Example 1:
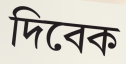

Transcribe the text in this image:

দিবেক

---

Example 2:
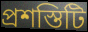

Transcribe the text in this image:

প্রশস্তিটি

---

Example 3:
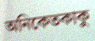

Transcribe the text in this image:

অনিকেতকাকু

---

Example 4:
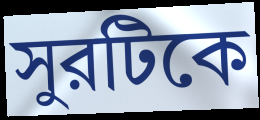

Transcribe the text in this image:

সুরটিকে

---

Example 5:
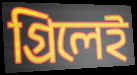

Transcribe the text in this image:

গ্রিলেই